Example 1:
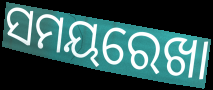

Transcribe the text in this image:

ସମୟରେଖା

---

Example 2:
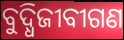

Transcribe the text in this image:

ବୁଦ୍ଧିଜୀବୀଗଣ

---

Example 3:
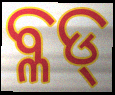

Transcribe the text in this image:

ବ୍ଳଡ୍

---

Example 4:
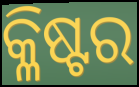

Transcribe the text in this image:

କ୍ଳିଷ୍ଟର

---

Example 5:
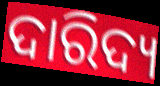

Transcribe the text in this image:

ଦାରିଦ୍ୟ